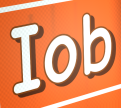
Iob